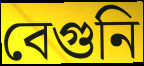
বেগুনি